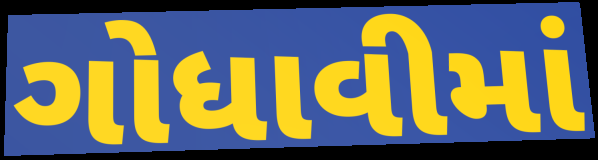
ગોધાવીમાં